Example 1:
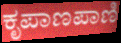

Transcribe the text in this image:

ಕೃಪಾಣಪಾಣಿ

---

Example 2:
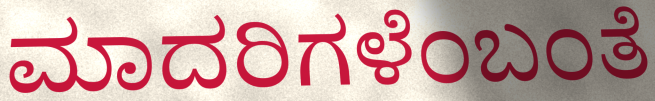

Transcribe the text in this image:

ಮಾದರಿಗಳೆಂಬಂತೆ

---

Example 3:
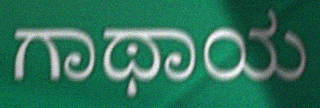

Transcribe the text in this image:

ಗಾಥಾಯ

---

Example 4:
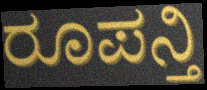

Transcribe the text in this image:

ರೂಪನ್ತಿ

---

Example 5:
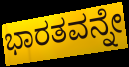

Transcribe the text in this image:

ಭಾರತವನ್ನೇ